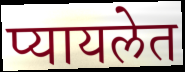
प्यायलेत